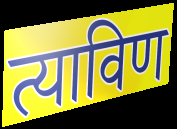
त्याविण